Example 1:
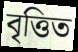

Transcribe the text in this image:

বৃত্তিত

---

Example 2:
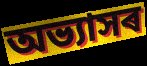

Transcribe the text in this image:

অভ্যাসৰ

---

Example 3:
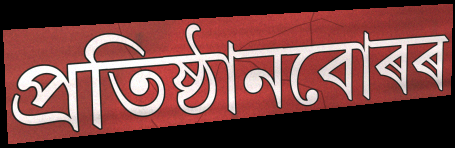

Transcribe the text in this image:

প্ৰতিষ্ঠানবোৰৰ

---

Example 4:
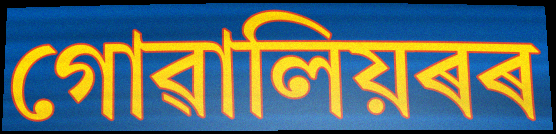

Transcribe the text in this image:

গোৱালিয়ৰৰ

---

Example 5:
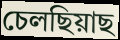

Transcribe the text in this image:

চেলছিয়াছ